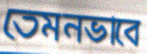
তেমনভাবে